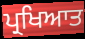
ਪ੍ਰਖਿਆਤ